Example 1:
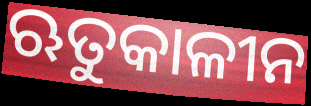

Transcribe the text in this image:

ଋତୁକାଳୀନ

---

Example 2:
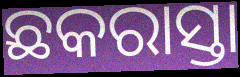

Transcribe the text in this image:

ଛକରାସ୍ତା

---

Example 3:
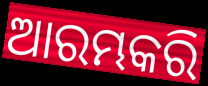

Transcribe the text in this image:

ଆରମ୍ଭକରି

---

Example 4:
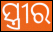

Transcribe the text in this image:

ସ୍ତ୍ରୀର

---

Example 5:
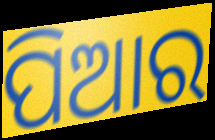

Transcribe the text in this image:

ପିଆର